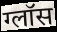
ग्लॉस